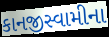
કાનજીસ્વામીના